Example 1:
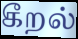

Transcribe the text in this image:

கீறல்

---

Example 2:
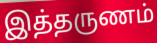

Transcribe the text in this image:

இத்தருணம்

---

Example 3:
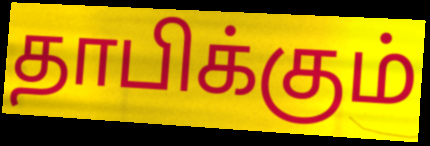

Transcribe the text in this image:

தாபிக்கும்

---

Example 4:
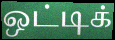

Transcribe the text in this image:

ஒட்டிக்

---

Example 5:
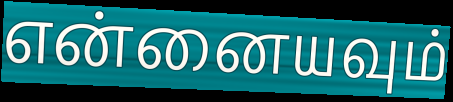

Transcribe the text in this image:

என்னையவும்